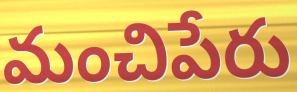
మంచిపేరు